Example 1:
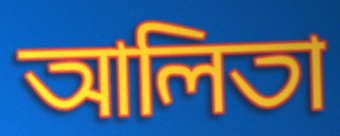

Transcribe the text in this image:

আলিতা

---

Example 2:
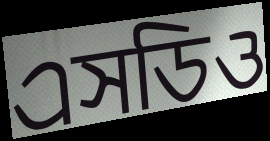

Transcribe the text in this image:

এসডিও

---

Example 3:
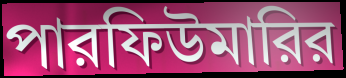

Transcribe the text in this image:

পারফিউমারির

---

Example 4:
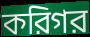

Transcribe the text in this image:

করিগর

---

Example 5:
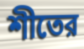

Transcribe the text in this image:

শীতের